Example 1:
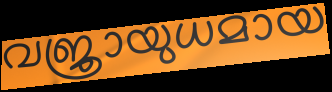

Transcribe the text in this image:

വജ്രായുധമായ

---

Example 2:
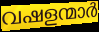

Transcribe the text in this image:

വഷളന്മാർ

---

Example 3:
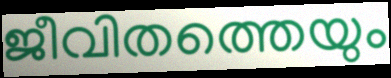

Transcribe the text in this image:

ജീവിതത്തെയും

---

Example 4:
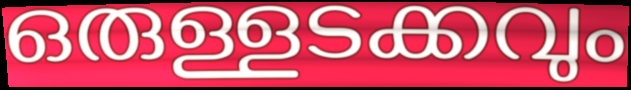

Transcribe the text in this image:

ഒരുള്ളടക്കവും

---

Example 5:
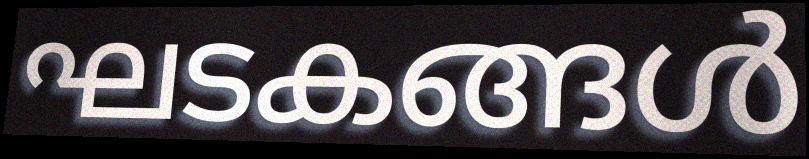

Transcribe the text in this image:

ഘടകങ്ങൾ